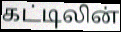
கட்டிலின்